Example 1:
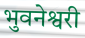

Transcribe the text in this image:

भुवनेश्वरी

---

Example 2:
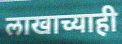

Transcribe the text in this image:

लाखाच्याही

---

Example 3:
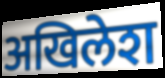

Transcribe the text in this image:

अखिलेश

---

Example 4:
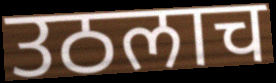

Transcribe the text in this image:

उठलाच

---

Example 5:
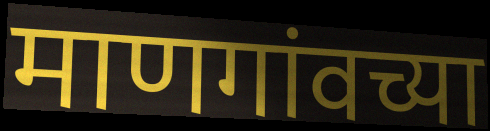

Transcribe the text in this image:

माणगांवच्या